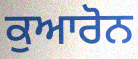
ਕੁਆਰੋਨ